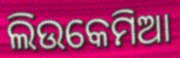
ଲିଉକେମିଆ